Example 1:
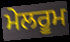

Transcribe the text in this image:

ਮੇਲਰੂਮ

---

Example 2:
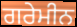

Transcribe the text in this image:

ਗਰੇਮੀਨ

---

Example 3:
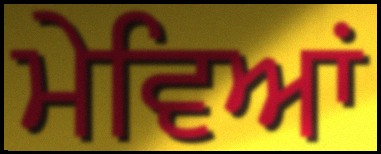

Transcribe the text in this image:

ਮੇਵਿਆਂ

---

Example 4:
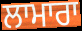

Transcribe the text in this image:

ਲਾਮਾਰਾ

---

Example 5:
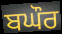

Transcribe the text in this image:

ਬਘੌਰ